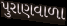
પુરાણવાળા